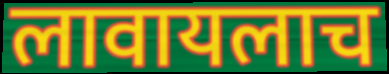
लावायलाच